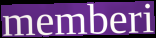
memberi